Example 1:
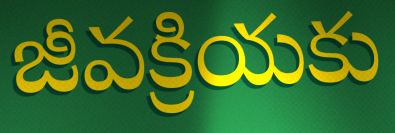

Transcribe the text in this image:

జీవక్రియకు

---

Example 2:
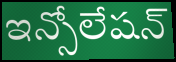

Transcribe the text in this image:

ఇన్సోలేషన్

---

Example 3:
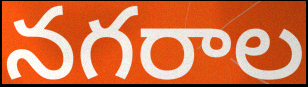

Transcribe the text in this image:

నగరాల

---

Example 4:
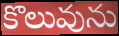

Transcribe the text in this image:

కొలువును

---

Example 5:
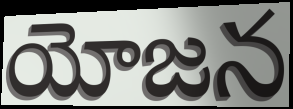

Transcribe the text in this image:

యోజన